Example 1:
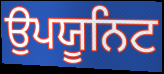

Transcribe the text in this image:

ਉਪਯੂਨਿਟ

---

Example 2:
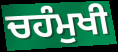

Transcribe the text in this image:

ਚਹੰਮੁਖੀ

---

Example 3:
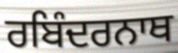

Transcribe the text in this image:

ਰਬਿੰਦਰਨਾਥ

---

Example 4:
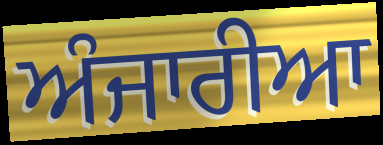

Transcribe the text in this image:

ਅੰਜਾਰੀਆ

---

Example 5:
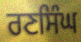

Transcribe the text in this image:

ਰਣਸਿੰਘ